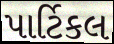
પાર્ટિકલ